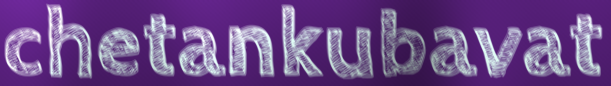
chetankubavat